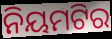
ନିୟମଟିର